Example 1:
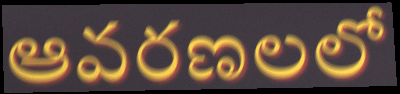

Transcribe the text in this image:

ఆవరణలలో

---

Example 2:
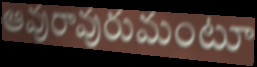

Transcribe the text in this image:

ఆవురావురుమంటూ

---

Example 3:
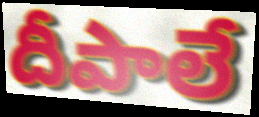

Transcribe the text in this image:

దీపాలే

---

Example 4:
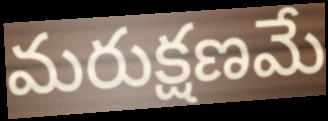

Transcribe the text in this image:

మరుక్షణమే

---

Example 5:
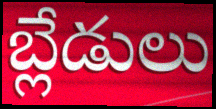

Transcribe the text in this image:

బ్లేడులు